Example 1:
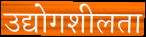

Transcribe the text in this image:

उद्योगशीलता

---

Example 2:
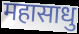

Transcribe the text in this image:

महासाधु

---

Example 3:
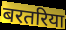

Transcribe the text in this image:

बरतरिया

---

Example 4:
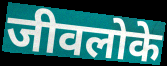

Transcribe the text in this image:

जीवलोके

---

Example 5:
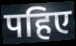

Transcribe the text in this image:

पहिए